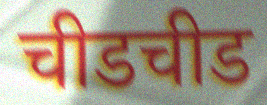
चीडचीड